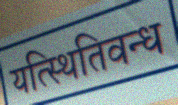
यत्स्थितिवन्ध